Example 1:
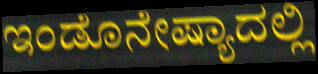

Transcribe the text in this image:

ಇಂಡೊನೇಷ್ಯಾದಲ್ಲಿ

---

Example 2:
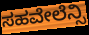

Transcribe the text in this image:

ಸಹವೇಲೆನ್ಸಿ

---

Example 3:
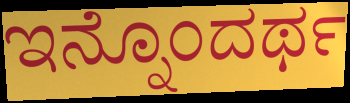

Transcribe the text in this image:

ಇನ್ನೊಂದರ್ಥ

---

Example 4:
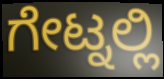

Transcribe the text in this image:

ಗೇಟ್ನಲ್ಲಿ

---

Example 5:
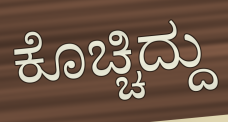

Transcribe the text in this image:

ಕೊಚ್ಚಿದ್ದು